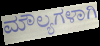
ಮೌಲ್ಯಗಳಾಗಿ